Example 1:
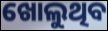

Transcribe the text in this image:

ଖୋଲୁଥିବ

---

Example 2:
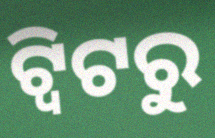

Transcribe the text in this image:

ଟ୍ବିଟରୁ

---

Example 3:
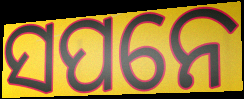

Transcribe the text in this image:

ସପନେ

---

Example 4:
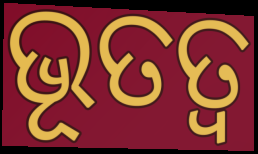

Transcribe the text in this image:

ଭୂତତ୍ୱ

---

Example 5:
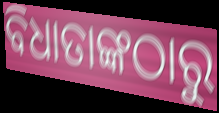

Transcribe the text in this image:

ବିଧାତାଙ୍କଠାରୁ